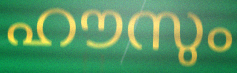
ഹൗസും